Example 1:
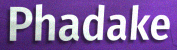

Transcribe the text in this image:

Phadake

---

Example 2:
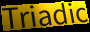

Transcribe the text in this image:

Triadic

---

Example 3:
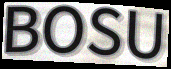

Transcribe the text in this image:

BOSU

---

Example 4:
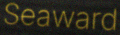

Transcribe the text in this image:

Seaward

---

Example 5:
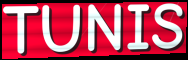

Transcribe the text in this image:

TUNIS